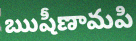
ఋషీణామపి